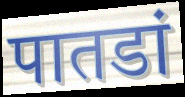
पातडां